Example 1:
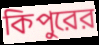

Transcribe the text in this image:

কিপুরের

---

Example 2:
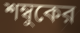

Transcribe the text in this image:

শম্বুকের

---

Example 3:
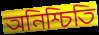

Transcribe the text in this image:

অনিশ্চিতি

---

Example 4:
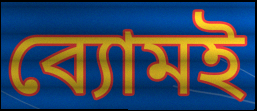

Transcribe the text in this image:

ব্যোমই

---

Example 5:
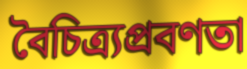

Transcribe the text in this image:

বৈচিত্র্যপ্রবণতা